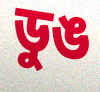
ডুঙ